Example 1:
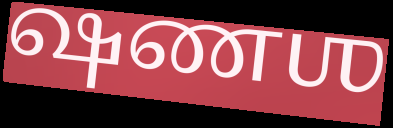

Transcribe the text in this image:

ஷணஶ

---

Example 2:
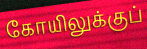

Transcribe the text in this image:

கோயிலுக்குப்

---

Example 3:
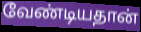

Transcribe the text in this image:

வேண்டியதான்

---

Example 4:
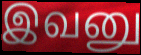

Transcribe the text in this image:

இவனு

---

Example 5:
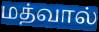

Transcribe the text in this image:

மத்வால்